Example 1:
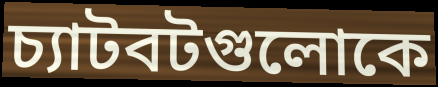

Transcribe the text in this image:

চ্যাটবটগুলোকে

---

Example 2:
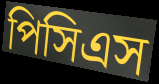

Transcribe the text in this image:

পিসিএস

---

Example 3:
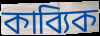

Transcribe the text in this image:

কাব্যিক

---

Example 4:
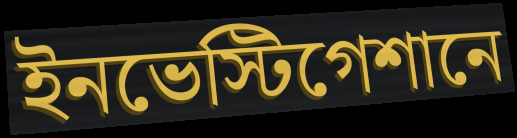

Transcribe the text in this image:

ইনভেস্টিগেশানে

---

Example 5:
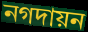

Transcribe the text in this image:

নগদায়ন